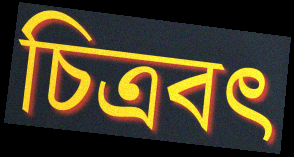
চিত্ৰবৎ